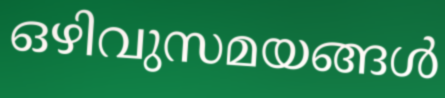
ഒഴിവുസമയങ്ങൾ